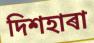
দিশহাৰা